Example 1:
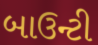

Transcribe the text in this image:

બાઉન્ટી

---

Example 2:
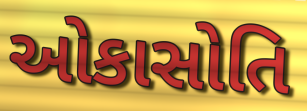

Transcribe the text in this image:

ઓકાસોતિ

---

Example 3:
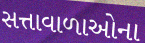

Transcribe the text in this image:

સત્તાવાળાઓના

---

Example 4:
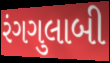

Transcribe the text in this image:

રંગગુલાબી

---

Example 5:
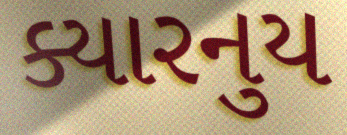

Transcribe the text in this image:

ક્યારનુય